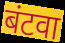
बंटवा